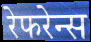
रेफरेन्स